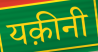
यक़ीनी